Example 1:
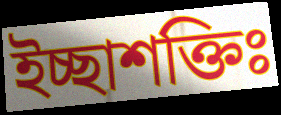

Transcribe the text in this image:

ইচ্ছাশক্তিঃ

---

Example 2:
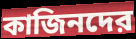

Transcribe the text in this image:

কাজিনদের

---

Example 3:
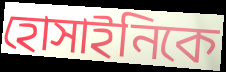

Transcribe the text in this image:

হোসাইনিকে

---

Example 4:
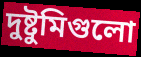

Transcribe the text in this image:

দুষ্টুমিগুলো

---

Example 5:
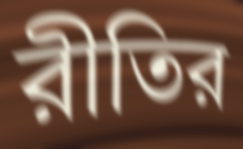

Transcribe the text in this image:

রীতির